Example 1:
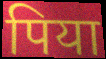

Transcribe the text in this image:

पिया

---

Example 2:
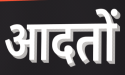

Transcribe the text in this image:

आदतों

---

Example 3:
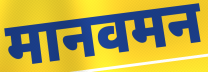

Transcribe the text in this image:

मानवमन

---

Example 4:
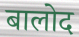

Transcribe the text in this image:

बालोद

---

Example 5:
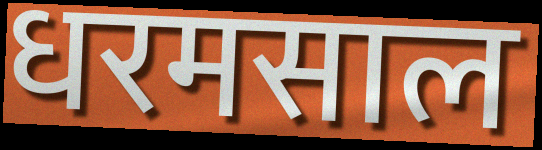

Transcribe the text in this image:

धरमसाल